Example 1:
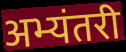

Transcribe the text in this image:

अभ्यंतरी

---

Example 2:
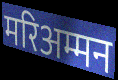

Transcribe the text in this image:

मरिअम्मन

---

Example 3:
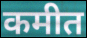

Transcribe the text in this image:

कमीत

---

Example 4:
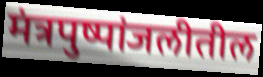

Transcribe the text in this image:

मंत्रपुष्पांजलीतील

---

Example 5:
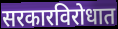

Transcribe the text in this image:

सरकारविरोधात